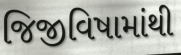
જિજીવિષામાંથી